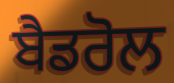
ਬੈਡਰੋਲ